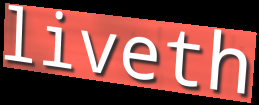
liveth